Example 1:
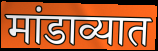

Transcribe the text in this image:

मांडाव्यात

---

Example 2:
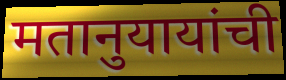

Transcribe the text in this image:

मतानुयायांची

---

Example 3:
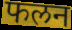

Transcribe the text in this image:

फलन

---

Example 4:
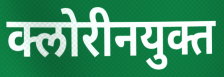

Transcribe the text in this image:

क्लोरीनयुक्त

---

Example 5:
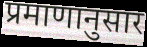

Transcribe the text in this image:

प्रमाणानुसार